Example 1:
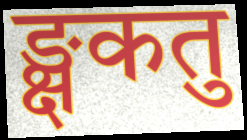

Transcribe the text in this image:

ङ्क्षकतु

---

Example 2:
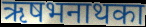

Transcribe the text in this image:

ऋषभनाथका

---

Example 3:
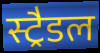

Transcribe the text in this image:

स्ट्रैडल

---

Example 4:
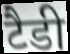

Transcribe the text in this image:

टैडी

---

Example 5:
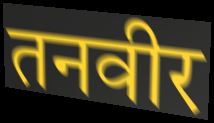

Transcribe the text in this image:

तनवीर